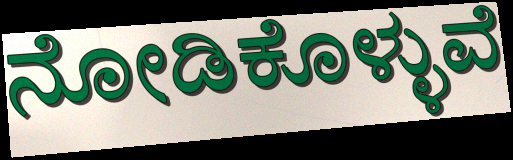
ನೋಡಿಕೊಳ್ಳುವೆ